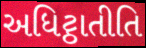
અધિટ્ઠાતીતિ